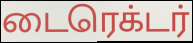
டைரெக்டர்